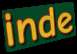
inde